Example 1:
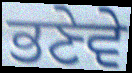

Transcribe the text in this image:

ਭਣੇਵੇ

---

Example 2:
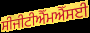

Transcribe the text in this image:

ਸੀਜੀਟੀਐੱਮਐੱਸਈ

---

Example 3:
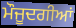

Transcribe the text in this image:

ਮੌਜੂਦਗੀਆਂ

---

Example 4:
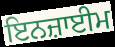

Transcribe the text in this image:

ਇਨਜ਼ਾਈਮ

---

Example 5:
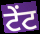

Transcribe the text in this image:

ਟੇਂਟ